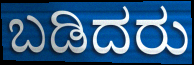
ಬಡಿದರು